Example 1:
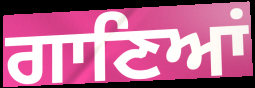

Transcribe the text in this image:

ਗਾਣਿਆਂ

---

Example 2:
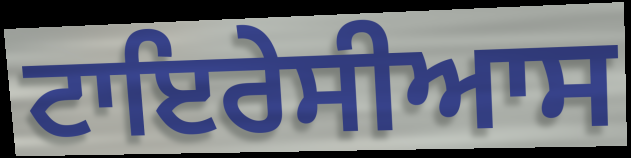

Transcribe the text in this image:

ਟਾਇਰੇਸੀਆਸ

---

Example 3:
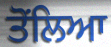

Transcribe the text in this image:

ਤੋਂਲਿਆ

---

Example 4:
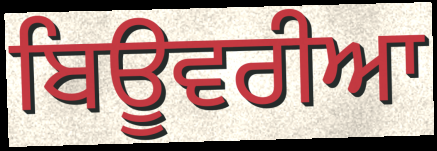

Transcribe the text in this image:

ਬਿਊਵਰੀਆ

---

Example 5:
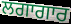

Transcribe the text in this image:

ਲਗਾਗਾਰ